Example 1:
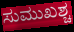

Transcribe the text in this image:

ಸುಮುಖಶ್ಚ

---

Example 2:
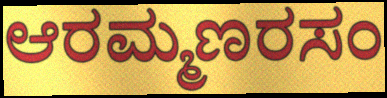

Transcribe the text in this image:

ಆರಮ್ಮಣರಸಂ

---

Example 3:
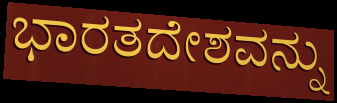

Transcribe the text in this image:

ಭಾರತದೇಶವನ್ನು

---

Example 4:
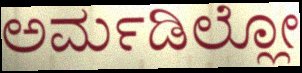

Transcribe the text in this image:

ಅರ್ಮಡಿಲ್ಲೋ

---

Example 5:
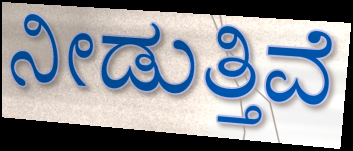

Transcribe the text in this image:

ನೀಡುತ್ತಿವೆ